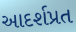
આદર્શપ્રત